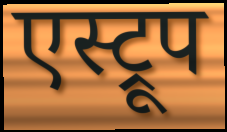
एस्ट्रूप